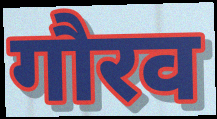
गौरव